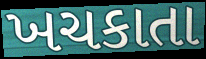
ખચકાતા